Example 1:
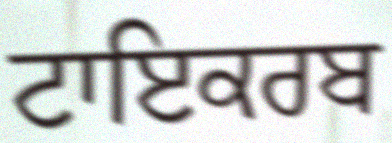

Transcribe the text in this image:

ਟਾਇਕਰਬ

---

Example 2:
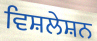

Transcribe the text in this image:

ਵਿਸ਼ਲੇਸ਼ਨ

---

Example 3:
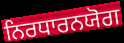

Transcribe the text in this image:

ਨਿਰਧਾਰਨਯੋਗ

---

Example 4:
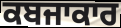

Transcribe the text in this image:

ਕਬਜਾਕਾਰ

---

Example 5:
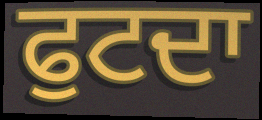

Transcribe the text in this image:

ਫੁਟਦਾ